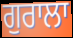
ਗੁਰਾਲਾ